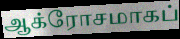
ஆக்ரோசமாகப்